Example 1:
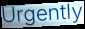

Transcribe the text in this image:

Urgently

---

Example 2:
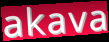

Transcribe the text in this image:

akava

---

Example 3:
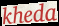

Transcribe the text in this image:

kheda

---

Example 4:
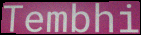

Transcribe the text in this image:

Tembhi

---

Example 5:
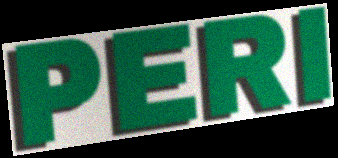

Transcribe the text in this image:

PERI